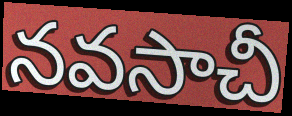
నవసాచీ